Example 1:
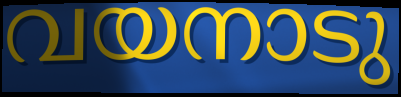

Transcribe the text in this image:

വയനാടു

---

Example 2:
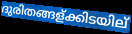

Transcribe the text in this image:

ദുരിതങ്ങള്ക്കിടയില്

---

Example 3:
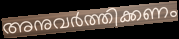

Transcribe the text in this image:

അനുവർത്തിക്കണം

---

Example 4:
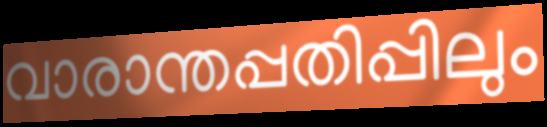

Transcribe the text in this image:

വാരാന്തപ്പതിപ്പിലും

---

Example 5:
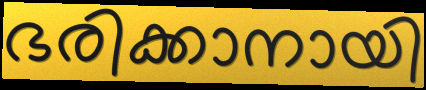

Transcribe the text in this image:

ഭരിക്കാനായി